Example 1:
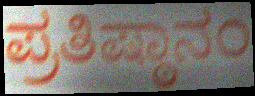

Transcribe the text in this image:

ಪ್ರತಿಷ್ಠಾನಂ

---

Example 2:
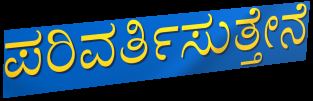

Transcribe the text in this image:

ಪರಿವರ್ತಿಸುತ್ತೇನೆ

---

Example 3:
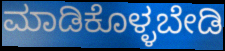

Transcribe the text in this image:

ಮಾಡಿಕೊಳ್ಳಬೇಡಿ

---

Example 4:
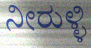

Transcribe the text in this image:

ನೀರುಳ್ಳಿ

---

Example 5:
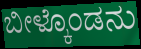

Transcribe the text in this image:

ಬೀಳ್ಕೊಂಡನು